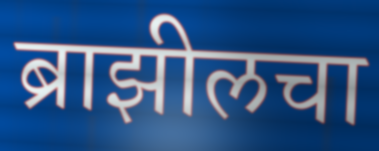
ब्राझीलचा